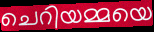
ചെറിയമ്മയെ